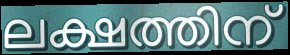
ലക്ഷത്തിന്